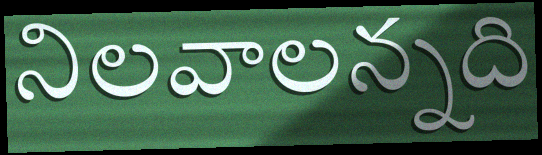
నిలవాలన్నది